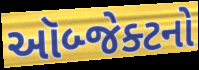
ઑબ્જેક્ટનો